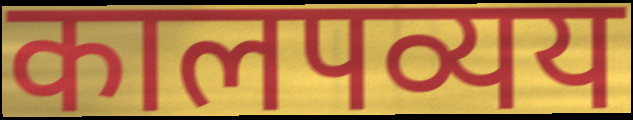
कालपव्यय